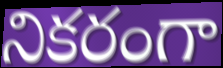
నికరంగా